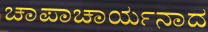
ಚಾಪಾಚಾರ್ಯನಾದ